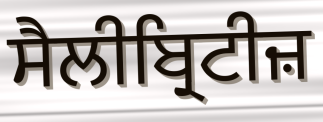
ਸੈਲੀਬ੍ਰਿਟੀਜ਼